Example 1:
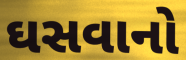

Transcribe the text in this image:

ઘસવાનો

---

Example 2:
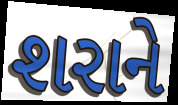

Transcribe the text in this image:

શરાને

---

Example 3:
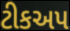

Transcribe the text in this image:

ટીકઅપ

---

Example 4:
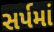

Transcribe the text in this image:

સર્પમાં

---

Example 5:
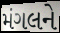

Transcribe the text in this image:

મંગલને